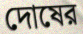
দোষের